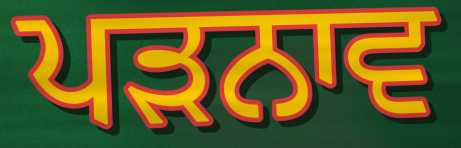
ਪੜਨਾਵ